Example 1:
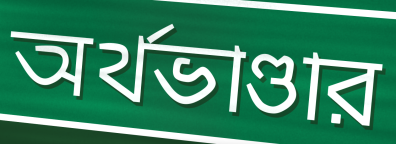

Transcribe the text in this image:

অর্থভাণ্ডার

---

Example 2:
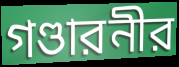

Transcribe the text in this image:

গণ্ডারনীর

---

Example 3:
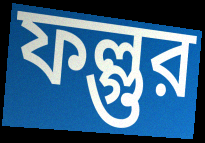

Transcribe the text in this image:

ফল্গুর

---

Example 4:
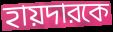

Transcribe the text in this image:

হায়দারকে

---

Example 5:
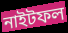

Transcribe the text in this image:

নাইটফল